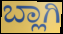
ಬ್ಲಾಗಿ